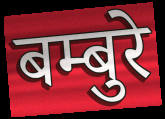
बम्बुरे